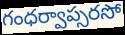
గంధర్వాప్సరసో